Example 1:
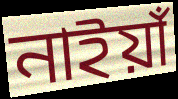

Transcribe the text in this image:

নাইয়াঁ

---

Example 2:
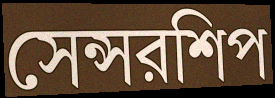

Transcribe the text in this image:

সেন্সরশিপ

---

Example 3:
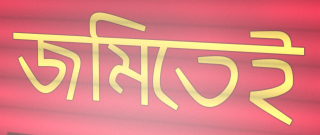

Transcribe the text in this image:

জমিতেই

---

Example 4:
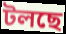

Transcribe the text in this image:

টলছে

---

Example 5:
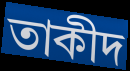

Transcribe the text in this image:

তাকীদ